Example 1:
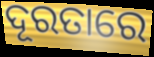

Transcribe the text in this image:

ଦୂରତାରେ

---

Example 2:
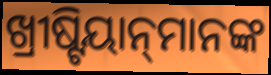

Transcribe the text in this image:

ଖ୍ରୀଷ୍ଟିୟାନ୍‌ମାନଙ୍କ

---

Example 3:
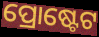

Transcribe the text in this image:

ପ୍ରୋଷ୍ଟେଟ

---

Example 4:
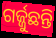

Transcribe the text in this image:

ଗର୍ଜ୍ଜୁଛନ୍ତି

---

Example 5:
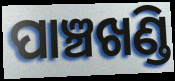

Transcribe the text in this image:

ପାଞ୍ଚଖଣ୍ଡି